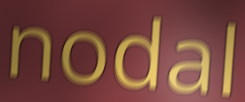
nodal